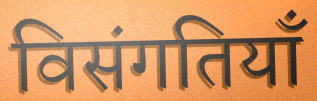
विसंगतियाँ